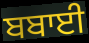
ਬਬਾਈ